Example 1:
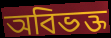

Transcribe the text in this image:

অবিভক্ত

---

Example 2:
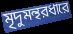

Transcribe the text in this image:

মৃদুমন্থরধারে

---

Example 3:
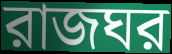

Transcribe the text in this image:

রাজঘর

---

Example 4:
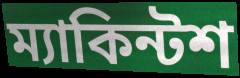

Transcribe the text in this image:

ম্যাকিন্টশ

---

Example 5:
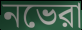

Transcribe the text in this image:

নভেরা